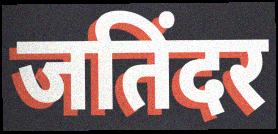
जतिंदर